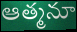
ఆత్మనూ